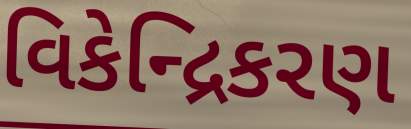
વિકેન્દ્રિકરણ